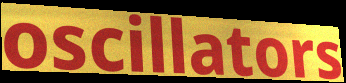
oscillators